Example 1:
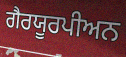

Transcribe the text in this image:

ਗੈਰਯੂਰਪੀਅਨ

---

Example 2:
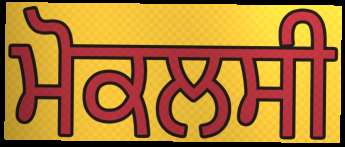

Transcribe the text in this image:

ਮੋਕਲਸੀ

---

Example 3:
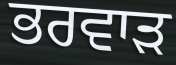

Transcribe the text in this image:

ਭਰਵਾੜ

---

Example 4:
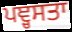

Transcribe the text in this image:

ਪਞ੍ਚਸਤਾ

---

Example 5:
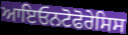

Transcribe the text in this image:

ਆਇਓਨਟੋਫੋਰੇਸਿਸ